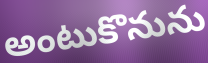
అంటుకొనును